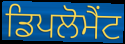
ਡਿਪਲੋਮੈਂਟ